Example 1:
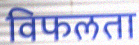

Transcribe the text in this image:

विफलता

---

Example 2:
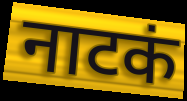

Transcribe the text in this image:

नाटकं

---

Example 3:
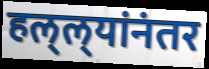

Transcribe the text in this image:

हल्ल्यांनंतर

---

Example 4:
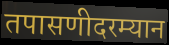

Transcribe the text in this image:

तपासणीदरम्यान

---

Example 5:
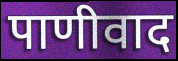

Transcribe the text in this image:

पाणीवाद